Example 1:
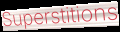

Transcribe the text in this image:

Superstitions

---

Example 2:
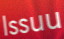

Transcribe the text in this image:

Issuu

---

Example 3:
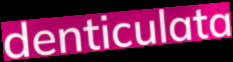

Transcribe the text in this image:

denticulata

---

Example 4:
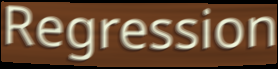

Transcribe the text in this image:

Regression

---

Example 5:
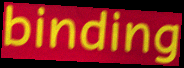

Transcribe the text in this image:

binding